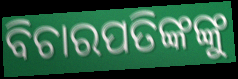
ବିଚାରପତିଙ୍କଙ୍କୁ